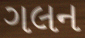
ગલન